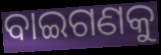
ବାଇଗଣକୁ